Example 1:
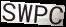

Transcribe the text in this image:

SWPC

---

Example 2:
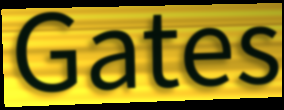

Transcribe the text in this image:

Gates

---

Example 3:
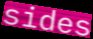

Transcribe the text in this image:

sides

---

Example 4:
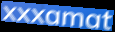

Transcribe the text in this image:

xxxamat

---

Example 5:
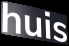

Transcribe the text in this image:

huis